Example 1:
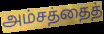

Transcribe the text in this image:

அம்சத்தைத்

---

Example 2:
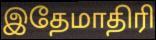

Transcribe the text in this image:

இதேமாதிரி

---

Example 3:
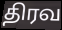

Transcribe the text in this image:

திரவ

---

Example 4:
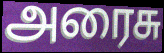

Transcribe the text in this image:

அரைசு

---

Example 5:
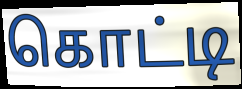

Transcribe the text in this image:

கொட்டி